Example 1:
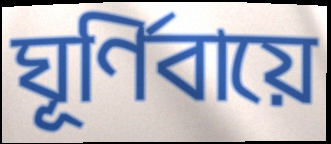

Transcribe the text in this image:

ঘূর্ণিবায়ে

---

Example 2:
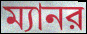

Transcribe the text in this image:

ম্যানর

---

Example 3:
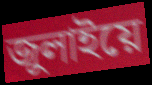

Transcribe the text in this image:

জুলাইয়ে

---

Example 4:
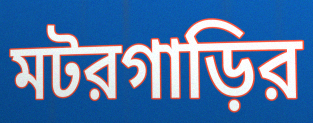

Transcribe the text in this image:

মটরগাড়ির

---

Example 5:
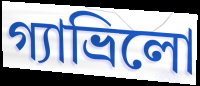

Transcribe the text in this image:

গ্যাভ্রিলো